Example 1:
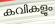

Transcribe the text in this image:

കവികളും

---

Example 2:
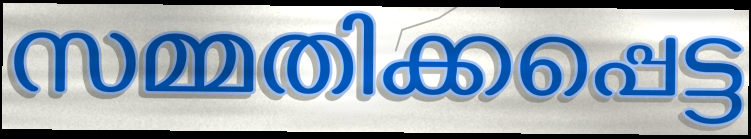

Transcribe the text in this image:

സമ്മതിക്കപ്പെട്ട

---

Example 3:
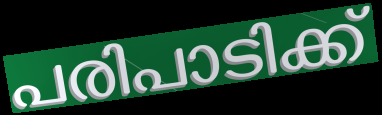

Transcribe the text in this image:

പരിപാടിക്ക്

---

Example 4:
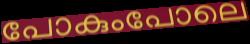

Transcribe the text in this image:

പോകുംപോലെ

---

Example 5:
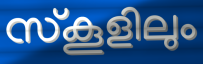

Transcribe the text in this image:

സ്കൂളിലും